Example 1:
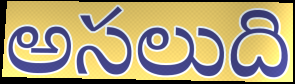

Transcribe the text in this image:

అసలుది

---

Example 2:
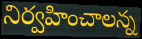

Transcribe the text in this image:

నిర్వహించాలన్న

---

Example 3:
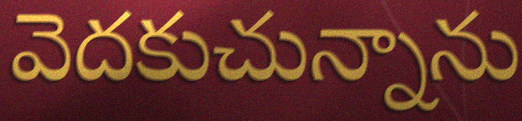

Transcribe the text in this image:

వెదకుచున్నాను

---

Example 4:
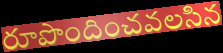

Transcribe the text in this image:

రూపొందించవలసిన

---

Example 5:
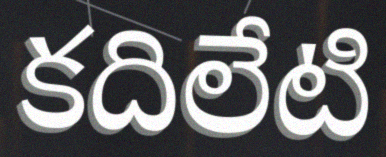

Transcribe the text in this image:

కదిలేటి